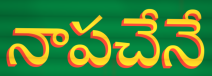
నాపచేనే